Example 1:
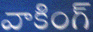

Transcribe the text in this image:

వాకింగ్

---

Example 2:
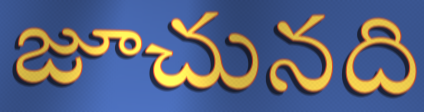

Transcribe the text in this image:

జూచునది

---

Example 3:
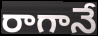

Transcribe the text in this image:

రాగానే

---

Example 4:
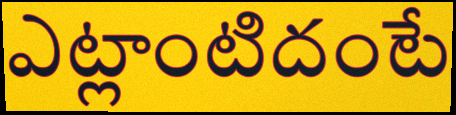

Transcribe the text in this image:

ఎట్లాంటిదంటే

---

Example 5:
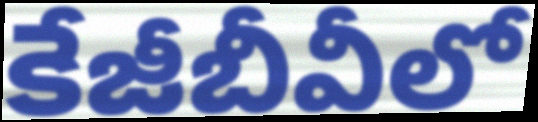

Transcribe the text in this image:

కేజీబీవీలో